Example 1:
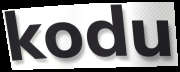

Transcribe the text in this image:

kodu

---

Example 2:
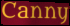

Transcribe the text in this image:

Canny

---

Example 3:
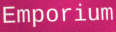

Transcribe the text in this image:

Emporium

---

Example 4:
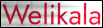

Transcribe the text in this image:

Welikala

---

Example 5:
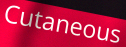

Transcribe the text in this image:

Cutaneous